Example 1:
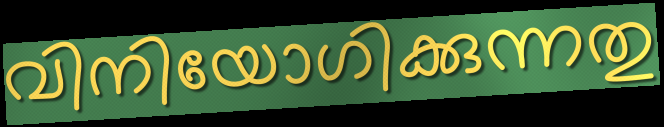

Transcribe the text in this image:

വിനിയോഗിക്കുന്നതു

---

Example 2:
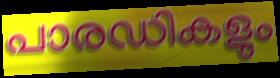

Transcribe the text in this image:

പാരഡികളും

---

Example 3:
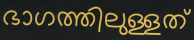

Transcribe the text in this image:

ഭാഗത്തിലുള്ളത്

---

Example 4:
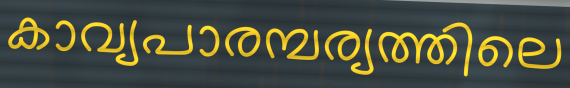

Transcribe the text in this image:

കാവ്യപാരമ്പര്യത്തിലെ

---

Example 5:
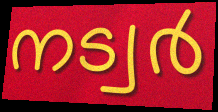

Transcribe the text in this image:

നട്വർ